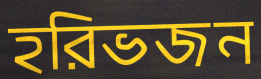
হরিভজন